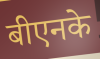
बीएनके